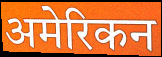
अमेरिकन